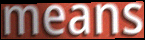
means